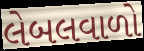
લેબલવાળો